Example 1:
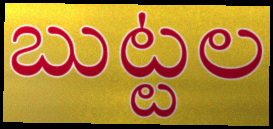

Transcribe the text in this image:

బుట్టల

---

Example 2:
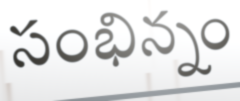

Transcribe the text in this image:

సంభిన్నం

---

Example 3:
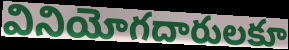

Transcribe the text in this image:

వినియోగదారులకూ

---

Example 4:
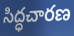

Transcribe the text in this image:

సిద్ధచారణ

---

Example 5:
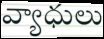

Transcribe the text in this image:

వ్యాధులు